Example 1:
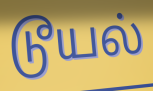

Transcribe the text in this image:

டூயல்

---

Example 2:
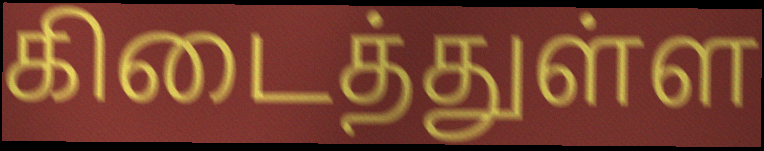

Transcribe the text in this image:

கிடைத்துள்ள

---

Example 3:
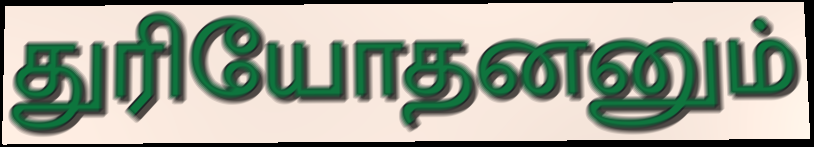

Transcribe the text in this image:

துரியோதனனும்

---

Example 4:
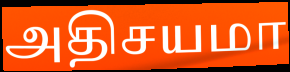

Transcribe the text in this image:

அதிசயமா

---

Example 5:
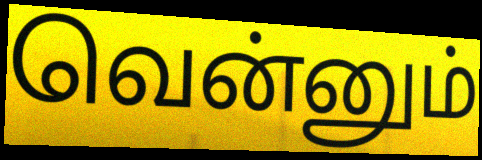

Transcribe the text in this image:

வென்னும்